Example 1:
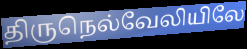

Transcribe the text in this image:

திருநெல்வேலியிலே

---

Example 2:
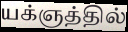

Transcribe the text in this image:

யக்ஞத்தில்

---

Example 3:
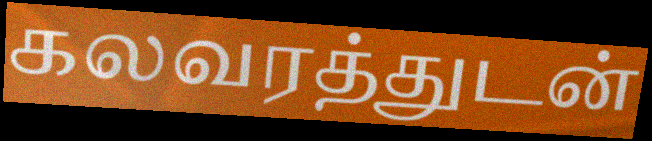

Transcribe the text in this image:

கலவரத்துடன்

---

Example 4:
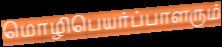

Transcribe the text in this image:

மொழிபெயர்ப்பாளரும்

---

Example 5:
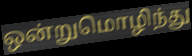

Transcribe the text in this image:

ஒன்றுமொழிந்து